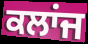
ਕਲਾਂਜ